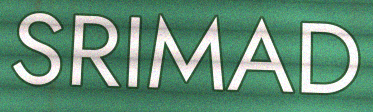
SRIMAD